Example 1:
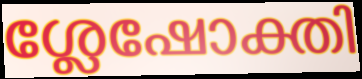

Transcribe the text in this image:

ശ്ലേഷോക്തി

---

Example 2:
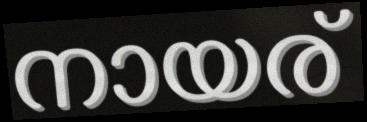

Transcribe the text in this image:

നായര്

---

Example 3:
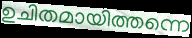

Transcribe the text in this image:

ഉചിതമായിത്തന്നെ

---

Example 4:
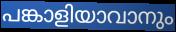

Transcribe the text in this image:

പങ്കാളിയാവാനും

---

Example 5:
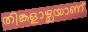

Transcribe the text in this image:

തിങ്കളാഴ്ചയാണ്